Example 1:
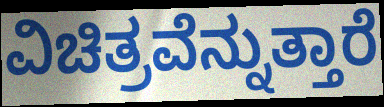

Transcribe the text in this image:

ವಿಚಿತ್ರವೆನ್ನುತ್ತಾರೆ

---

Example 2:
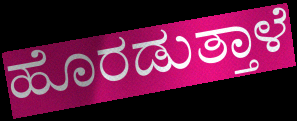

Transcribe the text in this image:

ಹೊರಡುತ್ತಾಳೆ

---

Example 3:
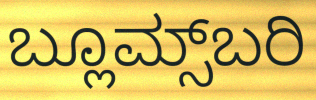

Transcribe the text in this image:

ಬ್ಲೂಮ್ಸ್‌ಬರಿ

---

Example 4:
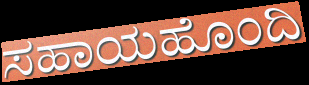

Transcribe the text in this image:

ಸಹಾಯಹೊಂದಿ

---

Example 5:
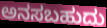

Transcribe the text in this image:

ಅನಸಬಹುದು